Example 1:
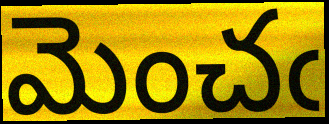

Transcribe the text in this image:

మెంచఁ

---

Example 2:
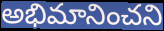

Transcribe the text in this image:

అభిమానించని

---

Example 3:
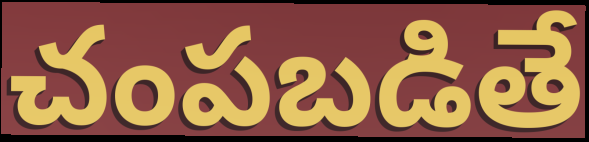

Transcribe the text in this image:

చంపబడితే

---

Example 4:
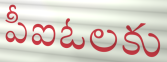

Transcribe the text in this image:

పీఐఓలకు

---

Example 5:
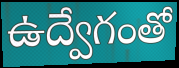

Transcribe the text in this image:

ఉద్వేగంతో